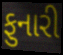
ફુનારી